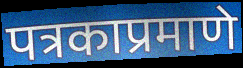
पत्रकाप्रमाणे